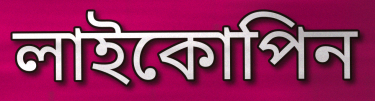
লাইকোপিন